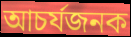
আচৰ্যজনক